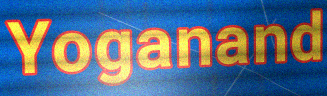
Yoganand